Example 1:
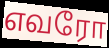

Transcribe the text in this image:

எவரோ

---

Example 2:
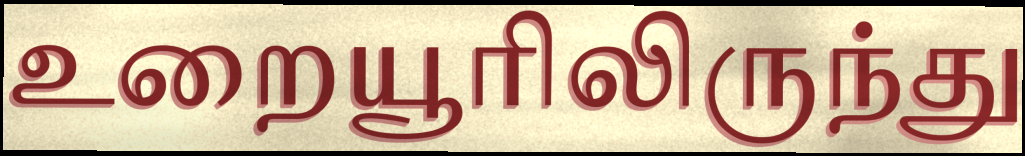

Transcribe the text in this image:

உறையூரிலிருந்து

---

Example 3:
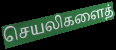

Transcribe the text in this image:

செயலிகளைத்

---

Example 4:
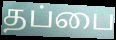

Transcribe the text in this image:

தப்பை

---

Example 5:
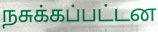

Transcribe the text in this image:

நசுக்கப்பட்டன